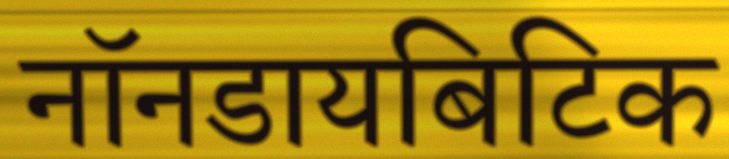
नॉनडायबिटिक